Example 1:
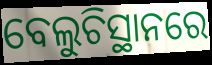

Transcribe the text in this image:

ବେଲୁଚିସ୍ଥାନରେ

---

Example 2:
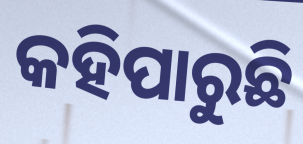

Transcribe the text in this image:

କହିପାରୁଛି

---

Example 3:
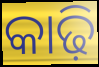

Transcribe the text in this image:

କାଢ଼ି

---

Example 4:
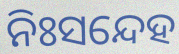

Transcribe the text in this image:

ନିଃସନ୍ଦେହ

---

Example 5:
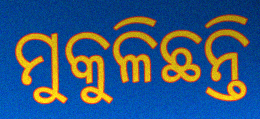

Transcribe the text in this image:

ମୁକୁଳିଛନ୍ତି